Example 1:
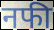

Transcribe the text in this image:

नफी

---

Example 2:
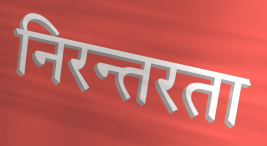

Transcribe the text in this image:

निरन्तरता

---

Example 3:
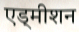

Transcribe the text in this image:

एड्मीशन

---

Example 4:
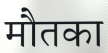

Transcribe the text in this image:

मौतका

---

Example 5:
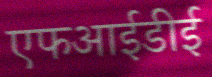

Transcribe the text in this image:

एफआईडीई